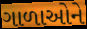
ગાળાઓને